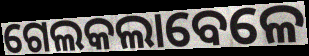
ଗେଲକଲାବେଳେ